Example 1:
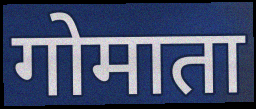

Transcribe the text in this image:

गोमाता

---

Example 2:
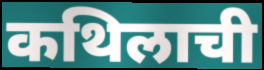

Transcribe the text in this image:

कथिलाची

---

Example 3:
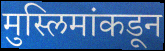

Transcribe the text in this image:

मुस्लिमांकडून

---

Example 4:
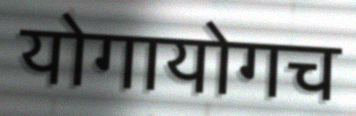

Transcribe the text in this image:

योगायोगच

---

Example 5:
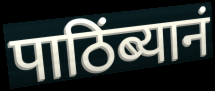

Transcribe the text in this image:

पाठिंब्यानं